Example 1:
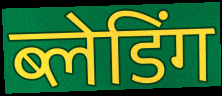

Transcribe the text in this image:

ब्लेडिंग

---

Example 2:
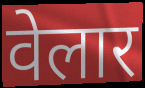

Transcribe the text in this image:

वेलार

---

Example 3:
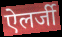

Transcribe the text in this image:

ऐलर्जी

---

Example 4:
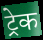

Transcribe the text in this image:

ट्रेक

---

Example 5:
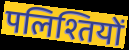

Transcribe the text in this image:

पलिश्तियों